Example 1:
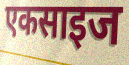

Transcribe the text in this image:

एकसाइज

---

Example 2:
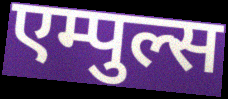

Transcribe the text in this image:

एम्पुल्स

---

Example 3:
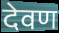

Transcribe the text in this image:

देवण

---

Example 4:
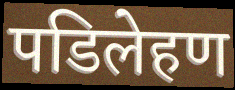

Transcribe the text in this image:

पडिलेहण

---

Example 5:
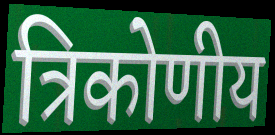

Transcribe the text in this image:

त्रिकोणीय